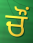
ਚੌਂ